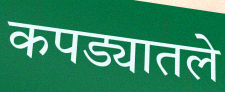
कपड्यातले